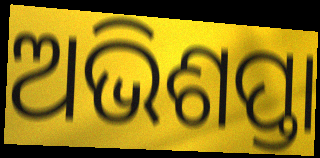
ଅଭିଶପ୍ତା